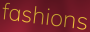
fashions